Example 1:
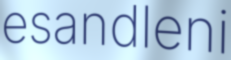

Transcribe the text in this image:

esandleni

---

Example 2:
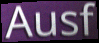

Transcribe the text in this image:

Ausf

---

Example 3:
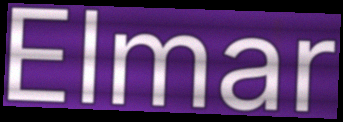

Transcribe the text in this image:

Elmar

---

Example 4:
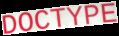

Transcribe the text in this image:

DOCTYPE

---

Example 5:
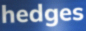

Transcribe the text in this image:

hedges